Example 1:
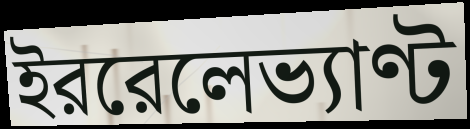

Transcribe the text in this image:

ইররেলেভ্যাণ্ট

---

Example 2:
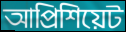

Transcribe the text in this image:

আপ্রিশিয়েট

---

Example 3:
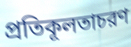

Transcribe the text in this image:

প্রতিকূলতাচরণ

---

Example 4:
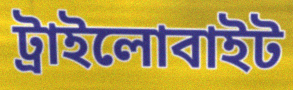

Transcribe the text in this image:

ট্রাইলোবাইট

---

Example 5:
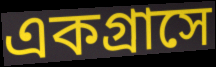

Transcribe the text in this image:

একগ্রাসে